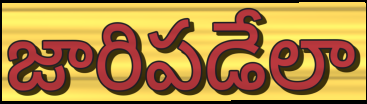
జారిపడేలా